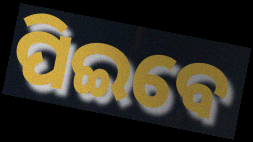
ପିଇବେ